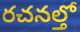
రచనల్తో